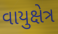
વાયુક્ષેત્ર